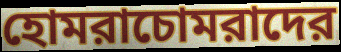
হোমরাচোমরাদের